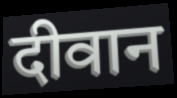
दीवान